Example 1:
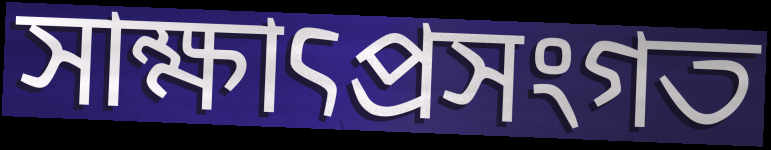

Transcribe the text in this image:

সাক্ষাৎপ্ৰসংগত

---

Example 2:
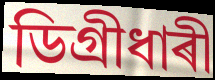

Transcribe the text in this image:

ডিগ্ৰীধাৰী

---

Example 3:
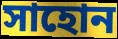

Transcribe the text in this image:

সাহোন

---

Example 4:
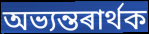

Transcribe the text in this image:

অভ্যন্তৰাৰ্থক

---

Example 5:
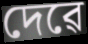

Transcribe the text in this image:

দেৱে